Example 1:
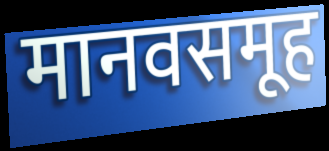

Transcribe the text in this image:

मानवसमूह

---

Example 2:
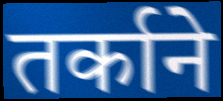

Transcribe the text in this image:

तर्काने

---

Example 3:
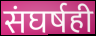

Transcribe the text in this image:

संघर्षही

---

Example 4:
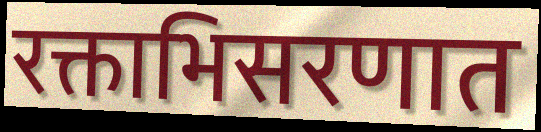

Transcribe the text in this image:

रक्ताभिसरणात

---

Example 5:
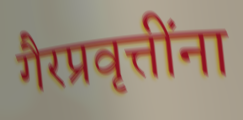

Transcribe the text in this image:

गैरप्रवृत्तींना